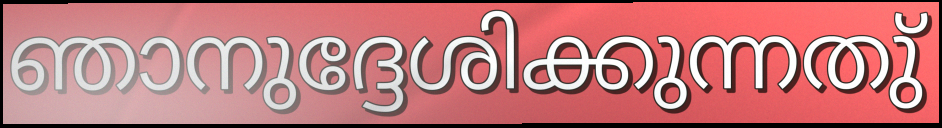
ഞാനുദ്ദേശിക്കുന്നതു്